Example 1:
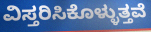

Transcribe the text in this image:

ವಿಸ್ತರಿಸಿಕೊಳ್ಳುತ್ತವೆ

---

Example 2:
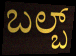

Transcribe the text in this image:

ಬಲ್ಬ್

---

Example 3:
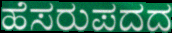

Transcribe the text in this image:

ಹೆಸರುಪದದ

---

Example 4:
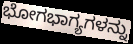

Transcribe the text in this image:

ಭೋಗಭಾಗ್ಯಗಳನ್ನು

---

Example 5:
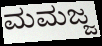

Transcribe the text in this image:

ಮಮಜ್ಜ